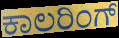
ಕಾಲರಿಂಗ್